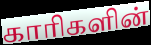
காரிகளின்